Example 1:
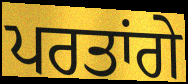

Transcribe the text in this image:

ਪਰਤਾਂਗੇ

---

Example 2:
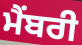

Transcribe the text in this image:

ਮੈਂਬਰੀ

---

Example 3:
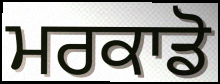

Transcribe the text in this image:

ਮਰਕਾਡੋ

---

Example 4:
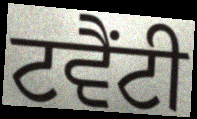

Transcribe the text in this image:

ਟਵੈਂਟੀ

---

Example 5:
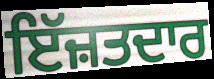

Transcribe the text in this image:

ਇੱਜ਼ਤਦਾਰ